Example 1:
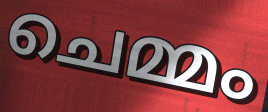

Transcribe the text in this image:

ചെമ്മം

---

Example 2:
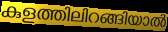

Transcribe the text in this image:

കുളത്തിലിറങ്ങിയാൽ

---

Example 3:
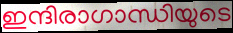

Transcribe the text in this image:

ഇന്ദിരാഗാന്ധിയുടെ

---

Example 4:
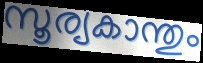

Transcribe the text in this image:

സൂര്യകാന്തും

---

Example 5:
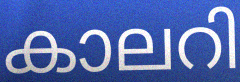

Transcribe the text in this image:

കാലറി